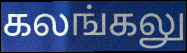
கலங்கலு